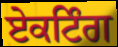
ਏਕਟਿੰਗ